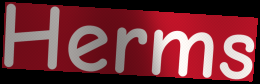
Herms